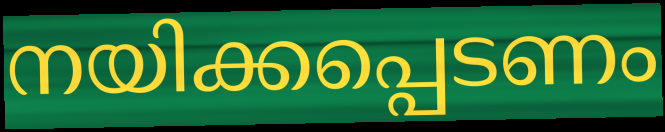
നയിക്കപ്പെടണം